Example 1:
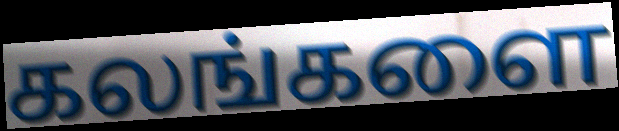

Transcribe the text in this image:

கலங்களை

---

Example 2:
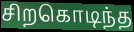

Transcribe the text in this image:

சிறகொடிந்த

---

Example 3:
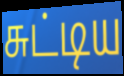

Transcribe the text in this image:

சுட்டிய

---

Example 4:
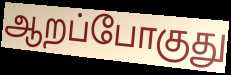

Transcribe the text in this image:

ஆறப்போகுது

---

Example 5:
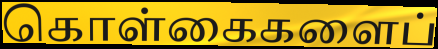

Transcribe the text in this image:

கொள்கைகளைப்